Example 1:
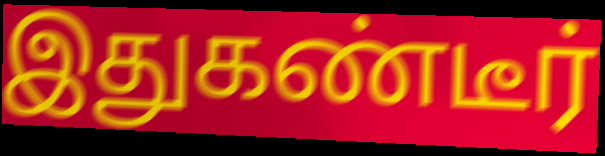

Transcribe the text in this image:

இதுகண்டீர்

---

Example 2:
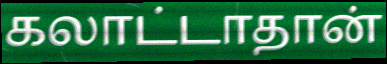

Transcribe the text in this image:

கலாட்டாதான்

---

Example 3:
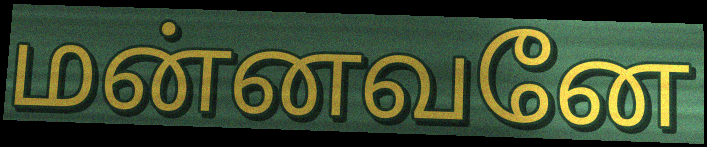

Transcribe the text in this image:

மன்னவனே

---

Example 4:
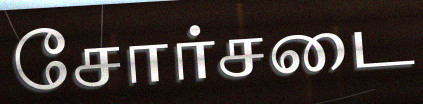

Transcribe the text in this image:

சோர்சடை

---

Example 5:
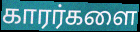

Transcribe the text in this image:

காரர்களை